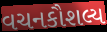
વચનકૌશલ્ય